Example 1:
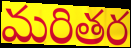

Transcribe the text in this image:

మరితర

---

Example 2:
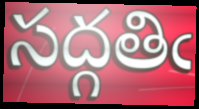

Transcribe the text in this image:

సద్గతిఁ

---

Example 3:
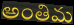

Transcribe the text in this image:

అంతిమ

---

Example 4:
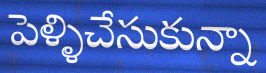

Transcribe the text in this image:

పెళ్ళిచేసుకున్నా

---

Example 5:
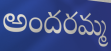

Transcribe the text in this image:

అందరమ్మ